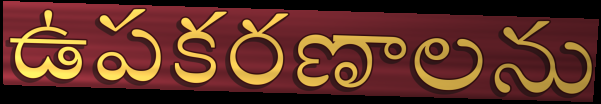
ఉపకరణాలను